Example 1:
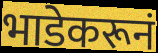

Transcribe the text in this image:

भाडेकरूनं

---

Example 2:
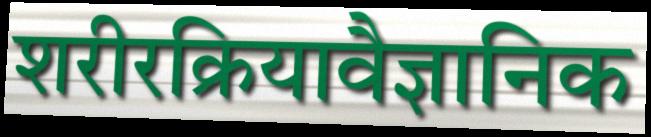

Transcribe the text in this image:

शरीरक्रियावैज्ञानिक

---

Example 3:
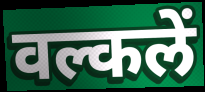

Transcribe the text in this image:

वल्कलें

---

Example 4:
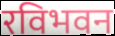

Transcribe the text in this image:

रविभवन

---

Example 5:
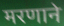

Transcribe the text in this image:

मरणाने